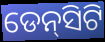
ଡେନ୍‌ସିଟି